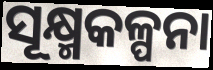
ସୂକ୍ଷ୍ମକଳ୍ପନା